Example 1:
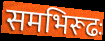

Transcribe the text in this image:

समभिरूढः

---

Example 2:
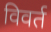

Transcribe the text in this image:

विवर्त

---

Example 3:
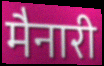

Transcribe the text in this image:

मैनारी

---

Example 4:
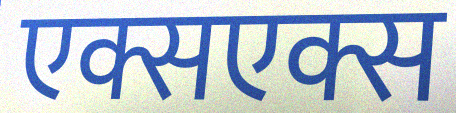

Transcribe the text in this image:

एक्सएक्स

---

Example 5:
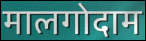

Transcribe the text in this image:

मालगोदाम